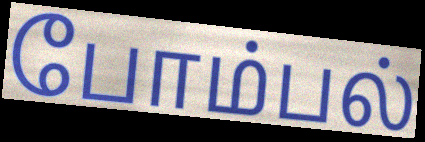
போம்பல்